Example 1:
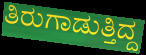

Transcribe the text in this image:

ತಿರುಗಾಡುತ್ತಿದ್ದ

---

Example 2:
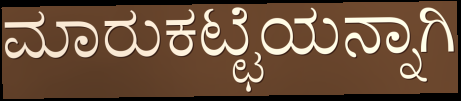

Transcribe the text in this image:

ಮಾರುಕಟ್ಟೆಯನ್ನಾಗಿ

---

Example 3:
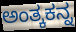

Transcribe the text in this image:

ಅಂತ್ಕಕನ್ನ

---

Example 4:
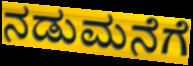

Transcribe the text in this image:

ನಡುಮನೆಗೆ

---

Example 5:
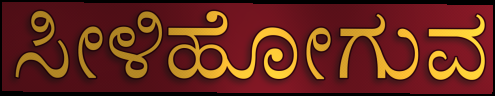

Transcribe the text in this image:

ಸೀಳಿಹೋಗುವ